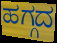
ಹಗ್ಗದ